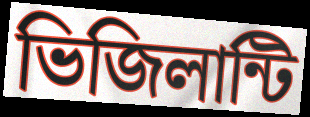
ভিজিলান্টি